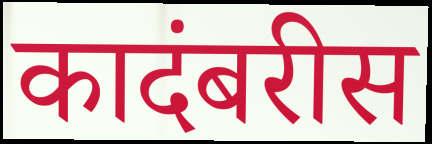
कादंबरीस